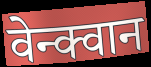
वेन्क्वान